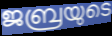
ജബ്രയുടെ